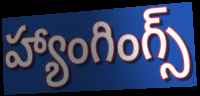
హ్యాంగింగ్స్